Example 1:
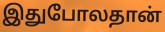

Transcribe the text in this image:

இதுபோலதான்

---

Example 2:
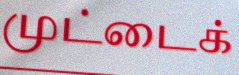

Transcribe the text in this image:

முட்டைக்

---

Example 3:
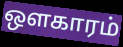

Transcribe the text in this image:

ஔகாரம்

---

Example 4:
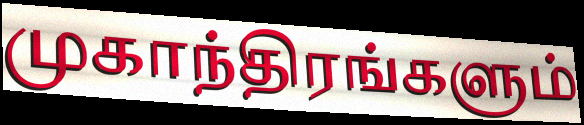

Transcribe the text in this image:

முகாந்திரங்களும்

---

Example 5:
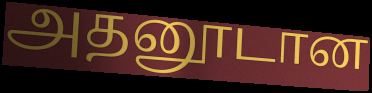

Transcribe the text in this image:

அதனூடான